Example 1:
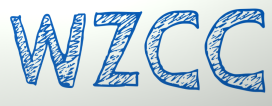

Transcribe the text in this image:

WZCC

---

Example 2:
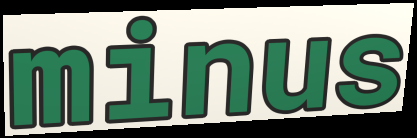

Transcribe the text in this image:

minus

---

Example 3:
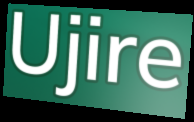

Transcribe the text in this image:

Ujire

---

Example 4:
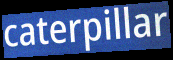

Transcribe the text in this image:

caterpillar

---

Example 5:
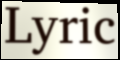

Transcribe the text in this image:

Lyric